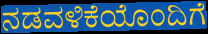
ನಡವಳಿಕೆಯೊಂದಿಗೆ